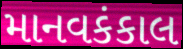
માનવકંકાલ